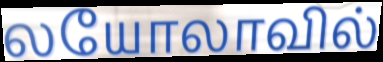
லயோலாவில்